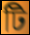
টি